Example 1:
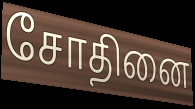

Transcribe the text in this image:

சோதினை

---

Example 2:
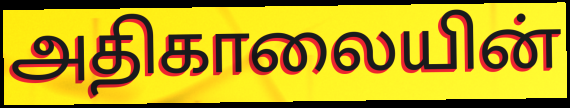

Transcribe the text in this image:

அதிகாலையின்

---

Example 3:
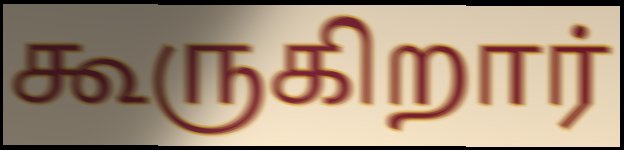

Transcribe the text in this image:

கூருகிறார்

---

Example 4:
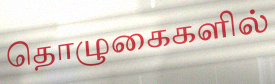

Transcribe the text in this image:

தொழுகைகளில்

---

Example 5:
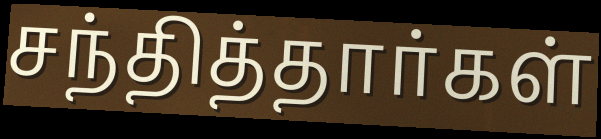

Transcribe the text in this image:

சந்தித்தார்கள்